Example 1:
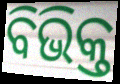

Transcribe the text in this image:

ବିଭିକ୍ତ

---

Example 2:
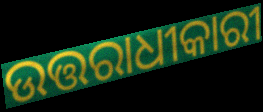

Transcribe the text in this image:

ଉତ୍ତରାଧୀକାରୀ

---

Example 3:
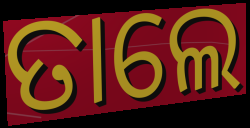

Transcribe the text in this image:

ତାଲେ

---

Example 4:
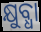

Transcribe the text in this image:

କ୍ଷୁବ୍ଧା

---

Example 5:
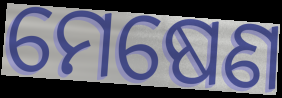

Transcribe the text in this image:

ମେଷେଣ